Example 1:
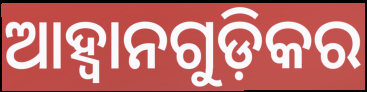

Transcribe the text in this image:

ଆହ୍ୱାନଗୁଡ଼ିକର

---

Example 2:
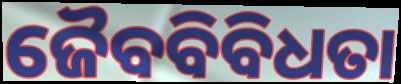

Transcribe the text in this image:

ଜୈବବିବିଧତା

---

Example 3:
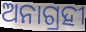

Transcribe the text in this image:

ଅନାଗ୍ରହୀ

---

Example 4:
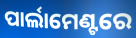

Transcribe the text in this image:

ପାର୍ଲାମେଣ୍ଟରେ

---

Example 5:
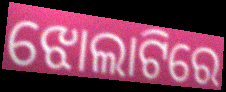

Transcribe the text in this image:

ଝୋଲାଟିରେ